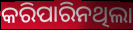
କରିପାରିନଥିଲା